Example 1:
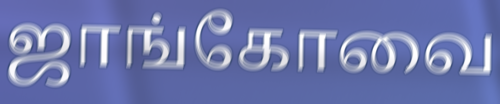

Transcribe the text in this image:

ஜாங்கோவை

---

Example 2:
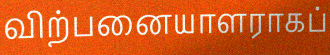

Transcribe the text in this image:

விற்பனையாளராகப்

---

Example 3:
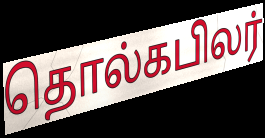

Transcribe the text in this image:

தொல்கபிலர்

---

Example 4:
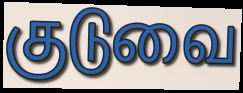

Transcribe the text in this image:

குடுவை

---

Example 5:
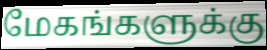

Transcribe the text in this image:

மேகங்களுக்கு